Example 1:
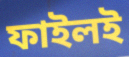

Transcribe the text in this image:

ফাইলই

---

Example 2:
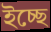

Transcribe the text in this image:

ইচ্ছে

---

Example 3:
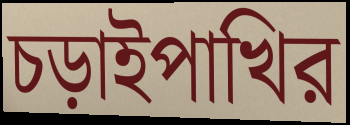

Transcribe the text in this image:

চড়াইপাখির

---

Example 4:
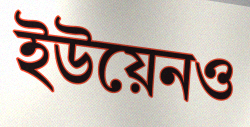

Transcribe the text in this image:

ইউয়েনও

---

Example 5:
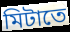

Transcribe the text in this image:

মিটাতে